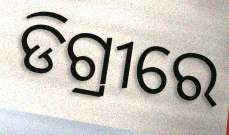
ଡିଗ୍ରୀରେ